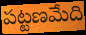
పట్టణమేది